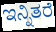
ಇನ್ನಿತರೆ